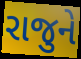
રાજુને